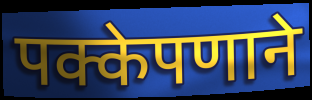
पक्केपणाने